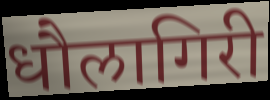
धौलागिरी